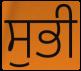
ਸੁਭੀ